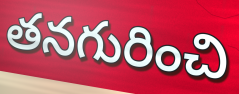
తనగురించి